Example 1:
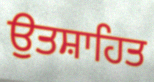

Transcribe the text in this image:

ਉੁਤਸ਼ਾਹਿਤ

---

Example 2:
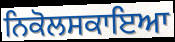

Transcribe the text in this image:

ਨਿਕੋਲਸਕਾਇਆ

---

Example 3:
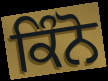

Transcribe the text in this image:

ਕਿੰਨੋ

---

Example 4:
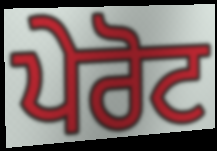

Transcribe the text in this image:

ਪੇਰੋਟ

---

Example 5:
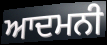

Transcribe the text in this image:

ਆਦਮਨੀ